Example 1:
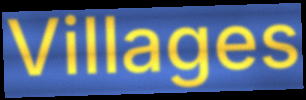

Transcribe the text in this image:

Villages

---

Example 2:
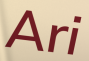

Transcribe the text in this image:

Ari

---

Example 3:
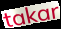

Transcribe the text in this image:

takar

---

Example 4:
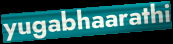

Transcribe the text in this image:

yugabhaarathi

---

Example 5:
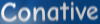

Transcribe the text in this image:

Conative